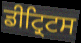
ਡੀਟ੍ਰਿਟਸ